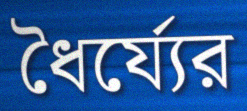
ধৈর্য্যের